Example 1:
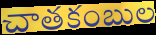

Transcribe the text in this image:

చాతకంబుల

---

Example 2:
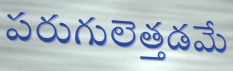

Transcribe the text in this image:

పరుగులెత్తడమే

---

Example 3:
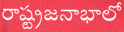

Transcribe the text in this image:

రాష్ట్రజనాభాలో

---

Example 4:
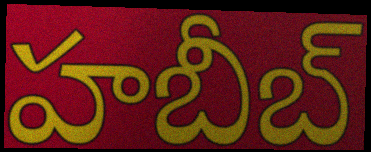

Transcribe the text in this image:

హబీబ్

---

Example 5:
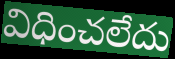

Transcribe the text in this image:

విధించలేదు